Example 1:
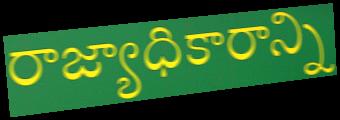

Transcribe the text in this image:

రాజ్యాధికారాన్ని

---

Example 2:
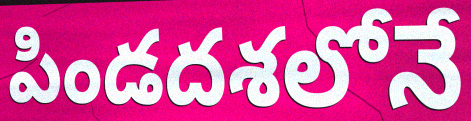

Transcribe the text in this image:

పిండదశలోనే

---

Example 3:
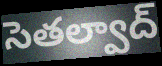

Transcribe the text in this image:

సెతల్వాద్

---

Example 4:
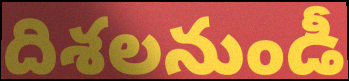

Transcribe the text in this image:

దిశలనుండీ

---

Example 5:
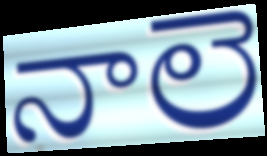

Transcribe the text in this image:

నాలె